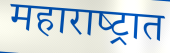
महाराष्‍ट्रात